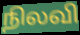
நிலவி